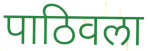
पाठिवला